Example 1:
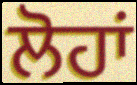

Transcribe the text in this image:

ਲੋਹਾਂ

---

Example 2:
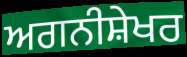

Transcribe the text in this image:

ਅਗਨੀਸ਼ੇਖਰ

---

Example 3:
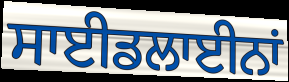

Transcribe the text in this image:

ਸਾਈਡਲਾਈਨਾਂ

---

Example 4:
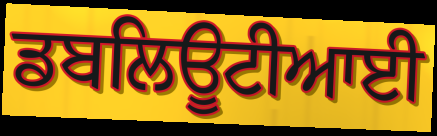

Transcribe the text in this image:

ਡਬਲਿਊਟੀਆਈ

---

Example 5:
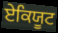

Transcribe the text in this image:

ਏਕਿਯੂਟ